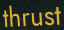
thrust